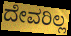
ದೇವರಿಲ್ಲ